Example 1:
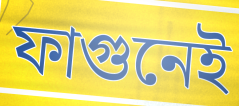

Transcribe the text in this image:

ফাগুনেই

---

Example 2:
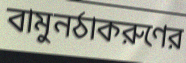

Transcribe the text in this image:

বামুনঠাকরুণের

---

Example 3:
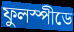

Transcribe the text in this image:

ফুলস্পীডে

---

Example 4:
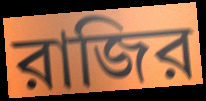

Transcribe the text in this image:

রাজির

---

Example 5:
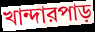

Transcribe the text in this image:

খান্দারপাড়